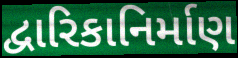
દ્વારિકાનિર્માણ